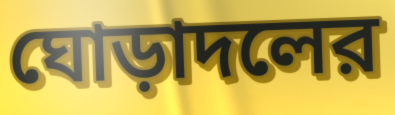
ঘোড়াদলের